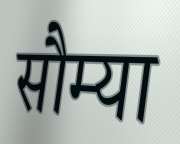
सौम्या